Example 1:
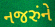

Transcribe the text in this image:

નજરુંને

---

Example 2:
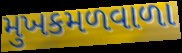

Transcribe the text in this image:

મુખકમળવાળા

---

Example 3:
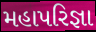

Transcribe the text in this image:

મહાપરિજ્ઞા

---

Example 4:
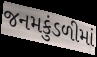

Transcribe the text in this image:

જનમકુંડળીમાં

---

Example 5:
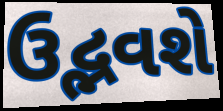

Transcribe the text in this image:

ઉદ્ભવશે